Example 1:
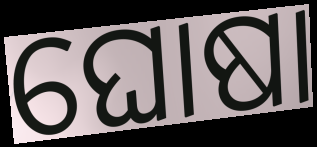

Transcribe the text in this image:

ଘୋଷା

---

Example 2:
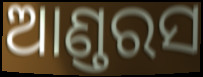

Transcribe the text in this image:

ଆଣ୍ଡରସ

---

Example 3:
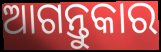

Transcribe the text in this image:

ଆଗନ୍ତୁକାର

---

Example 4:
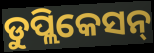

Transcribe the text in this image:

ଡୁପ୍ଲିକେସନ୍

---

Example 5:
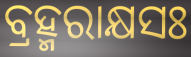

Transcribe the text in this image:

ବ୍ରହ୍ମରାକ୍ଷସଃ